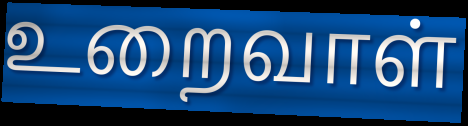
உறைவாள்